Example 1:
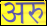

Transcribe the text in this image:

अरु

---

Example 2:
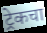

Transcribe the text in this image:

ट्रेकचा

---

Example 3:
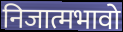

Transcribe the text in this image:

निजात्मभावो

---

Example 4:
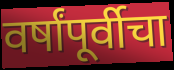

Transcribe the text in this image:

वर्षांपूर्वीचा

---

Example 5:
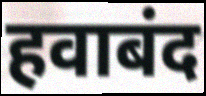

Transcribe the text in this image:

हवाबंद